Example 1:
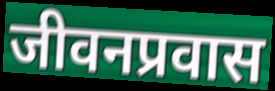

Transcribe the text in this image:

जीवनप्रवास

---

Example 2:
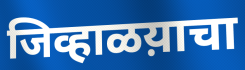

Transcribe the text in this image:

जिव्हाळय़ाचा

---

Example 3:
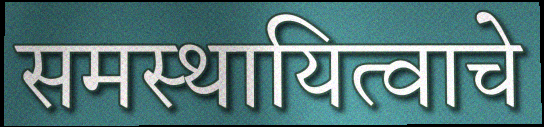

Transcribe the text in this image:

समस्थायित्वाचे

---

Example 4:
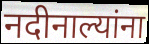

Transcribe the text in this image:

नदीनाल्यांना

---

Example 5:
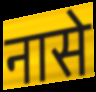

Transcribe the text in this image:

नासे